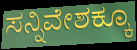
ಸನ್ನಿವೇಶಕ್ಕೂ